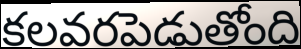
కలవరపెడుతోంది